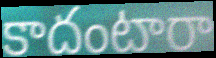
కాదంటారా